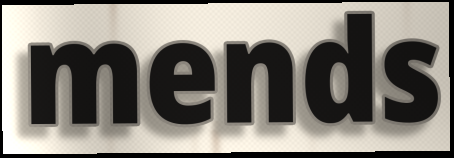
mends